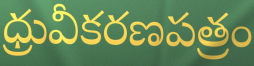
ధ్రువీకరణపత్రం